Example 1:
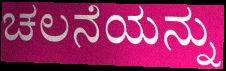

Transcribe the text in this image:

ಚಲನೆಯನ್ನು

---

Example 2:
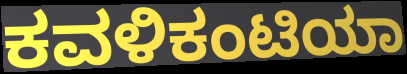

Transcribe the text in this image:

ಕವಳಿಕಂಟಿಯಾ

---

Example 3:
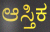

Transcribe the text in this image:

ಆಸ್ತಿಕ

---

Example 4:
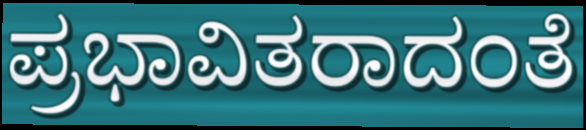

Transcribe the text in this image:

ಪ್ರಭಾವಿತರಾದಂತೆ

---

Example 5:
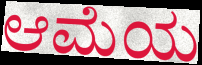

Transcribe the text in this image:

ಆಮೆಯ